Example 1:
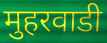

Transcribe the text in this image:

मुहरवाडी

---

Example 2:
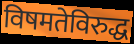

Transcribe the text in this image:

विषमतेविरुद्ध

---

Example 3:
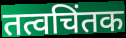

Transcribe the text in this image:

तत्वचिंतक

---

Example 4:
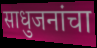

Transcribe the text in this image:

साधुजनांचा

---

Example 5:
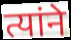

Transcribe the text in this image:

त्यांने